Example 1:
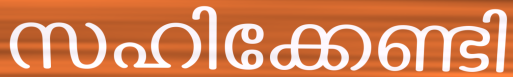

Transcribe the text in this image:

സഹിക്കേണ്ടി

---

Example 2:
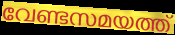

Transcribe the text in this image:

വേണ്ടസമയത്ത്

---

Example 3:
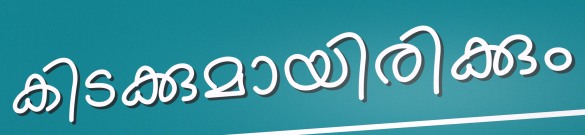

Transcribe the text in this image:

കിടക്കുമായിരിക്കും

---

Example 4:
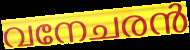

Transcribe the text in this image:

വനേചരൻ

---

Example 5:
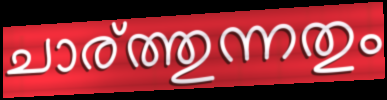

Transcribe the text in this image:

ചാര്ത്തുന്നതും